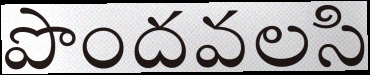
పొందవలసి